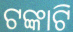
ଟଙ୍କାଟି